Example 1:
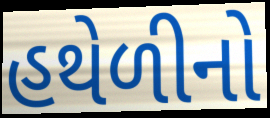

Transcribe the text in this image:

હથેળીનો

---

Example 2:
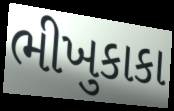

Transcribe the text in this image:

ભીખુકાકા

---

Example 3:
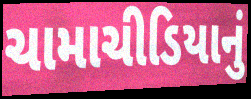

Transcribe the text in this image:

ચામાચીડિયાનું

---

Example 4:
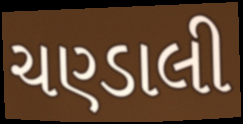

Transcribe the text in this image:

ચણ્ડાલી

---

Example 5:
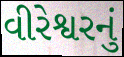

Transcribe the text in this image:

વીરેશ્વરનું